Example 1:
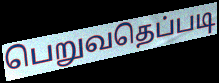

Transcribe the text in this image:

பெறுவதெப்படி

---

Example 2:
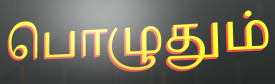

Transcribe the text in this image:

பொழுதும்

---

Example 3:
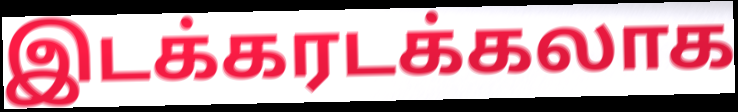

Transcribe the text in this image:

இடக்கரடக்கலாக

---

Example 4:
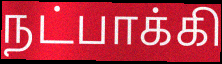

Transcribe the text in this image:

நட்பாக்கி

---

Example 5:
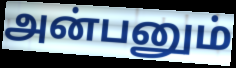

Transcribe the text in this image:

அன்பனும்